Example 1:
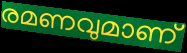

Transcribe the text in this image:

രമണവുമാണ്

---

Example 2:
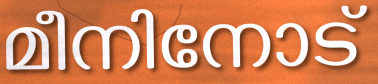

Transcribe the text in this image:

മീനിനോട്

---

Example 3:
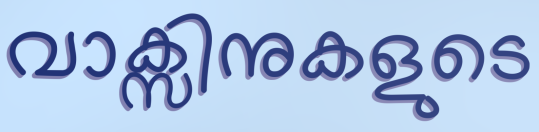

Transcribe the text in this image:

വാക്സിനുകളുടെ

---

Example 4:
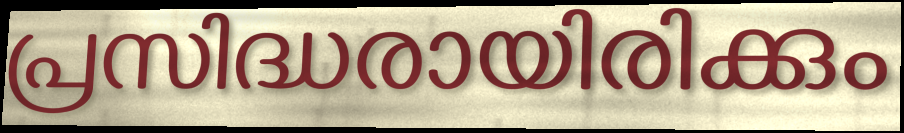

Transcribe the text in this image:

പ്രസിദ്ധരായിരിക്കും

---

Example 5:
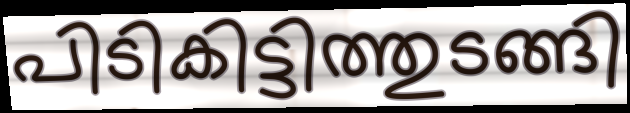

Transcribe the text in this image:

പിടികിട്ടിത്തുടങ്ങി